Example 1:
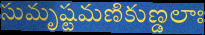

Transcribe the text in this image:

సుమృష్టమణికుణ్డలాః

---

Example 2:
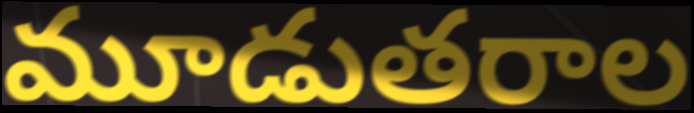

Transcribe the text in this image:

మూడుతరాల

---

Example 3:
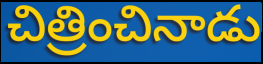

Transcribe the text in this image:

చిత్రించినాడు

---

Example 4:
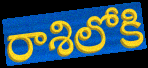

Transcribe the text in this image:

రాశిలోకి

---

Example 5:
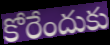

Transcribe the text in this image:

కోరేందుకు